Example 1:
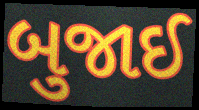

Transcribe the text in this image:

બુજાઈ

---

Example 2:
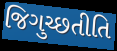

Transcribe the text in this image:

જિગુચ્છતીતિ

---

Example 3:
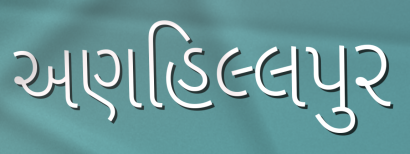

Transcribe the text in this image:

અણહિલ્લપુર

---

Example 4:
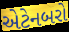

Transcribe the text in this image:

એટેનબરો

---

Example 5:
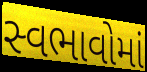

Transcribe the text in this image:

સ્વભાવોમાં